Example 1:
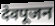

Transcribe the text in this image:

देवपूजन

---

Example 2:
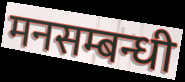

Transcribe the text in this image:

मनसम्बन्धी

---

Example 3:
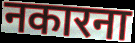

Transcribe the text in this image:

नकारना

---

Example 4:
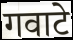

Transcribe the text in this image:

गवाटे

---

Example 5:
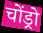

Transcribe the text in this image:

चोंड्रो